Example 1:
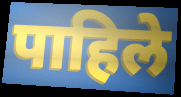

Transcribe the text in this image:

पाहिले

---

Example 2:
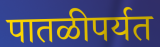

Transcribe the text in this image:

पातळीपर्यत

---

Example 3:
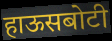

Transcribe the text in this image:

हाऊसबोटी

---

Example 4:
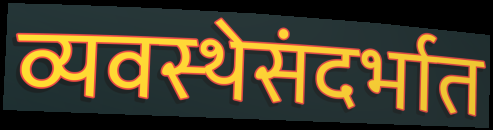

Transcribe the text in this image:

व्यवस्थेसंदर्भात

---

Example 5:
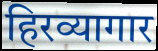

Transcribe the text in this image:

हिरव्यागार